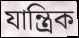
যান্ত্রিক